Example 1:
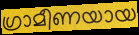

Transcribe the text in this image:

ഗ്രാമീണയായ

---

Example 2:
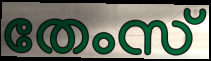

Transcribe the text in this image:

തേംസ്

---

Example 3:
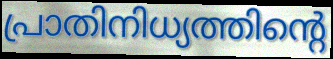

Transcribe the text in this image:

പ്രാതിനിധ്യത്തിന്റെ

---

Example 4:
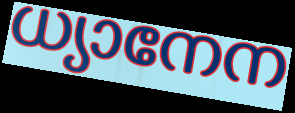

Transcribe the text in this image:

ധ്യാനേന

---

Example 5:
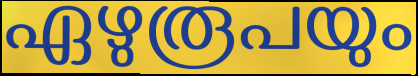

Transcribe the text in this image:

ഏഴുരൂപയും